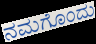
ನಮಗೊಂದು